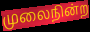
முலைநின்ற